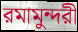
রমামুন্দরী